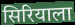
सिरियाला